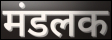
मंडलक